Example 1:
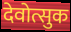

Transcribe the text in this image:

देवोत्सुक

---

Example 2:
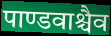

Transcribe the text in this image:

पाण्डवाश्चैव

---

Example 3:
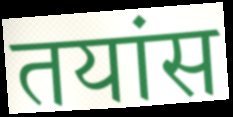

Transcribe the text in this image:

तयांस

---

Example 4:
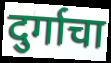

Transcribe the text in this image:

दुर्गाचा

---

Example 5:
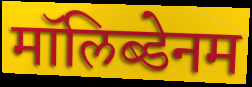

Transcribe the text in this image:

मॉलिब्डेनम